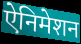
ऐनिमेशन